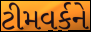
ટીમવર્કને